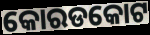
କୋରଡକୋଟ